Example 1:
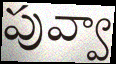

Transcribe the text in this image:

పువ్వా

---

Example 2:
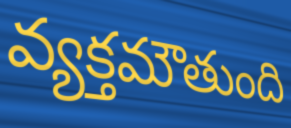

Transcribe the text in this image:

వ్యక్తమౌతుంది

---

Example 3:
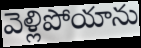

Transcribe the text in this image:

వెళ్లిపోయాను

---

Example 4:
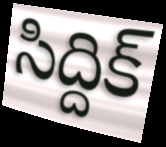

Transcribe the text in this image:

సిద్దిక్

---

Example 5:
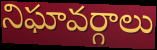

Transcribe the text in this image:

నిఘావర్గాలు